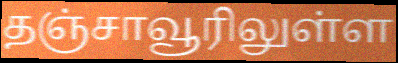
தஞ்சாவூரிலுள்ள